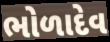
ભોળાદેવ